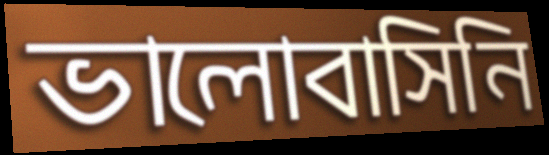
ভালোবাসিনি